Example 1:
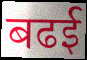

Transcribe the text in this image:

बढई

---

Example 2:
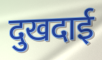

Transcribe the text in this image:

दुखदाई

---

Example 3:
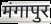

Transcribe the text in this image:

मंगापुर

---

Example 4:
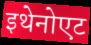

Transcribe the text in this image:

इथेनोएट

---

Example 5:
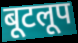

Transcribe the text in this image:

बूटलूप